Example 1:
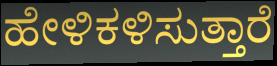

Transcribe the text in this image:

ಹೇಳಿಕಳಿಸುತ್ತಾರೆ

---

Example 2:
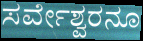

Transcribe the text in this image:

ಸರ್ವೇಶ್ವರನೂ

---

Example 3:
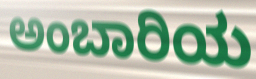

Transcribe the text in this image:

ಅಂಬಾರಿಯ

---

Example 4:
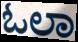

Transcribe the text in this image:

ಓಲಾ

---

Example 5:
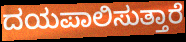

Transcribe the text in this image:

ದಯಪಾಲಿಸುತ್ತಾರೆ